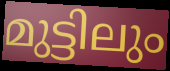
മുട്ടിലും